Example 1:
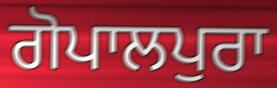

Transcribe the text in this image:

ਗੋਪਾਲਪੁਰਾ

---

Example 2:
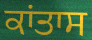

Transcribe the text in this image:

ਕਾਂਤਾਸ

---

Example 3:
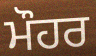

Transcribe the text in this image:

ਮੌਹਰ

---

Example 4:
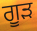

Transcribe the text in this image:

ਗੂੜ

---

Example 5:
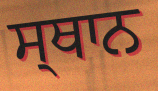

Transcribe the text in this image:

ਸ੍ਥਾਨ